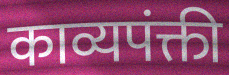
काव्यपंक्ती